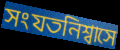
সংযতনিশ্বাসে